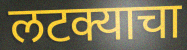
लटक्याचा